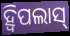
ହ୍ୱିପଲାସ୍